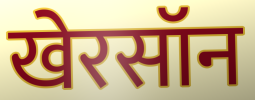
खेरसॉन